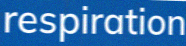
respiration